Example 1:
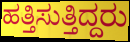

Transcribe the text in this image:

ಹತ್ತಿಸುತ್ತಿದ್ದರು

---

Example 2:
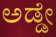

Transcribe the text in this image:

ಅಡ್ಡೇ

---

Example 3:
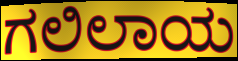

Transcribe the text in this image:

ಗಲಿಲಾಯ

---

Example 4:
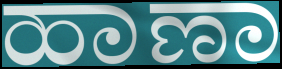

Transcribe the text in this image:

ಹಾಣಾ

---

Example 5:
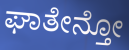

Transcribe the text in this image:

ಘಾತೇನ್ತೋ